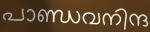
പാണ്ഡവനിന്ദ